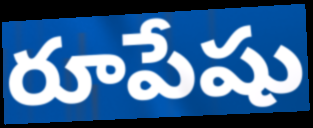
రూపేషు